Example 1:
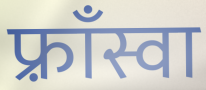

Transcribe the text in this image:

फ़्राँस्वा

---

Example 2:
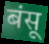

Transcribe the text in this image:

बंसू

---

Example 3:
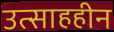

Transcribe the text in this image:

उत्साहहीन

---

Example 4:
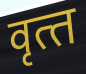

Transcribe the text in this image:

वृत्‍त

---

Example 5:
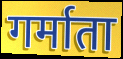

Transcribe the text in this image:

गर्माता